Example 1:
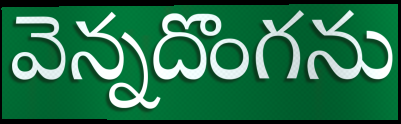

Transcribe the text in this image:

వెన్నదొంగను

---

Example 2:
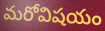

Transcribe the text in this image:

మరోవిషయం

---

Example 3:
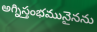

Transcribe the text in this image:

అగ్నిస్తంభమునైనను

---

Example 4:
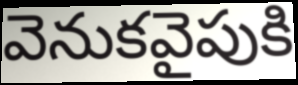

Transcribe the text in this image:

వెనుకవైపుకి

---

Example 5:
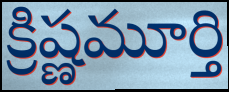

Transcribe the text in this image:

క్రిష్ణమూర్తి